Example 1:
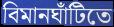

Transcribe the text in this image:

বিমানঘাঁটিতে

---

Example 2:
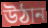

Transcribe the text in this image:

উঠান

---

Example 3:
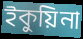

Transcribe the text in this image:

ইকুয়িনা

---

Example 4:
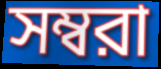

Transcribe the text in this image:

সম্বরা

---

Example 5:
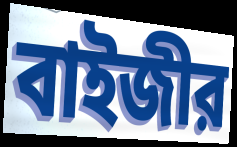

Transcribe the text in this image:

বাইজীর